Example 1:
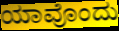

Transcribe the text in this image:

ಯಾವೊಂದು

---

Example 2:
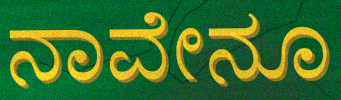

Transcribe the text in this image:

ನಾವೇನೂ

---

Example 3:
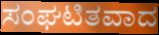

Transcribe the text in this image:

ಸಂಘಟಿತವಾದ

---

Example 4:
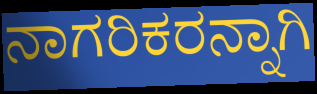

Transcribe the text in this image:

ನಾಗರಿಕರನ್ನಾಗಿ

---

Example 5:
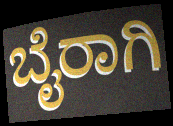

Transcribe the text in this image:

ಬೈರಾಗಿ